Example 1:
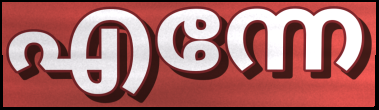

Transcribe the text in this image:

എന്നേ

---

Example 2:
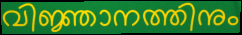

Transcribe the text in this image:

വിജ്ഞാനത്തിനും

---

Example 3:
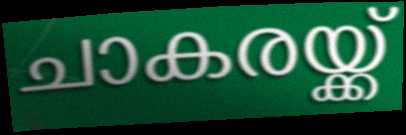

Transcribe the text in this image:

ചാകരയ്ക്ക്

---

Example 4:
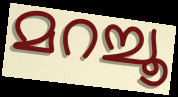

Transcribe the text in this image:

മറച്ചൂ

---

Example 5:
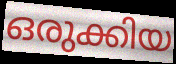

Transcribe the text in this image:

ഒരുക്കിയ